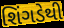
શિંગડેથી